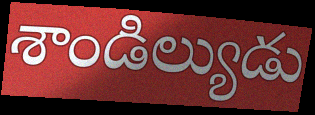
శాండిల్యుడు